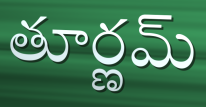
తూర్ణమ్